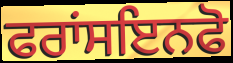
ਫਰਾਂਸਇਨਫੋ